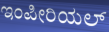
ಇಂಪೀರಿಯಲ್